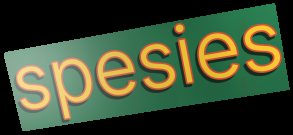
spesies